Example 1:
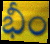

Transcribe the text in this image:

భీం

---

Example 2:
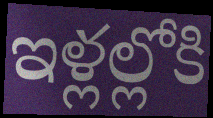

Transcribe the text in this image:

ఇళ్లల్లోకి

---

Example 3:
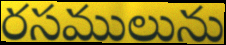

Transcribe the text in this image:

రసములును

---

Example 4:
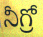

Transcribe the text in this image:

నీగ్రో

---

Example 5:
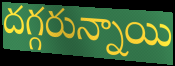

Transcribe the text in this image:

దగ్గరున్నాయి